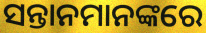
ସନ୍ତାନମାନଙ୍କରେ